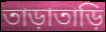
তাড়াতাড়ি